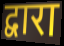
द्वारा